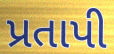
પ્રતાપી